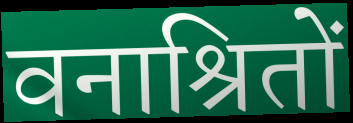
वनाश्रितों